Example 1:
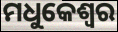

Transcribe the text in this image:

ମଧୁକେଶ୍ୱର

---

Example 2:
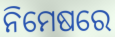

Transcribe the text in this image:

ନିମେଷରେ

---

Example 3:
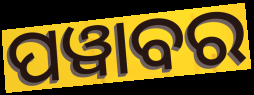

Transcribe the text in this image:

ପୱାବର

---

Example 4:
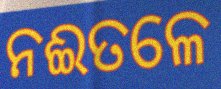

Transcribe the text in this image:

ନଈତଳେ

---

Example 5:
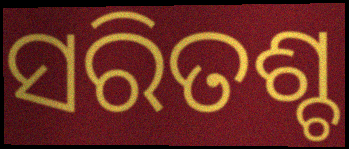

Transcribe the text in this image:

ସରିତଶ୍ଚ